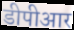
डीपीआर